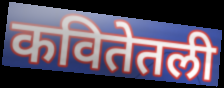
कवितेतली